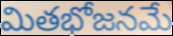
మితభోజనమే